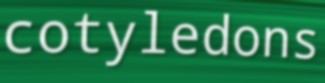
cotyledons